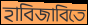
হাবিজাবিতে